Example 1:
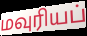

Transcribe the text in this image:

மவுரியப்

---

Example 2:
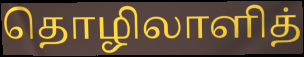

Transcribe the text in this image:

தொழிலாளித்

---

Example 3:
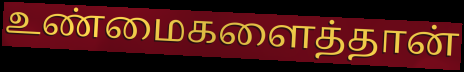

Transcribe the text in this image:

உண்மைகளைத்தான்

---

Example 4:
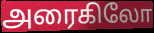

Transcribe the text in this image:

அரைகிலோ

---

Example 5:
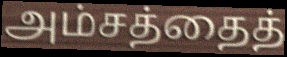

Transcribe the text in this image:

அம்சத்தைத்